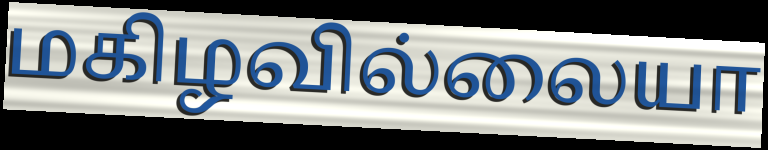
மகிழவில்லையா